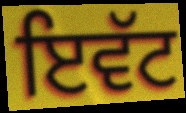
ਇਵੱਟ